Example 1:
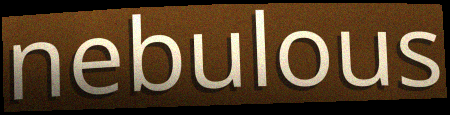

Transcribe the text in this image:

nebulous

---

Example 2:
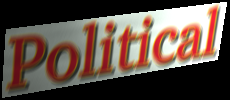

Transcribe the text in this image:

Political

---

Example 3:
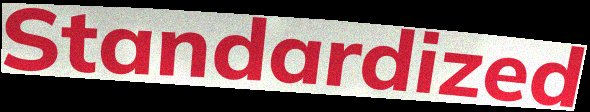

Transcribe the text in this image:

Standardized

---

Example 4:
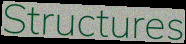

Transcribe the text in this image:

Structures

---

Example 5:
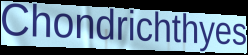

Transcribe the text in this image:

Chondrichthyes